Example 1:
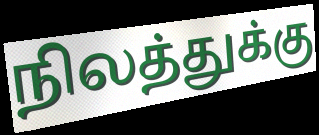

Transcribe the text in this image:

நிலத்துக்கு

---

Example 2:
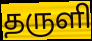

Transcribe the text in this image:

தருளி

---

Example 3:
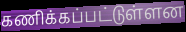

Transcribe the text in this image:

கணிக்கப்பட்டுள்ளன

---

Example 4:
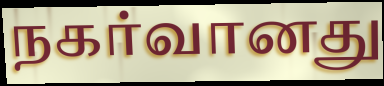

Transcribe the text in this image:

நகர்வானது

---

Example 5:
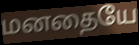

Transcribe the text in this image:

மனதையே